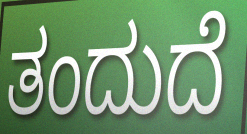
ತಂದುದೆ